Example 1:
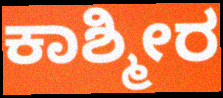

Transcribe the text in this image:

ಕಾಶ್ಮೀರ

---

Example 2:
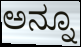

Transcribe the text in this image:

ಅನ್ನೂ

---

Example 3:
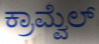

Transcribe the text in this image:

ಕ್ರಾಮ್ವೆಲ್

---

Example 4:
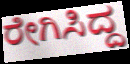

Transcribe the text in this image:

ರೇಗಿಸಿದ್ದ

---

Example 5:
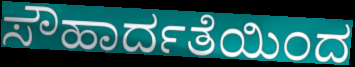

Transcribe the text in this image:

ಸೌಹಾರ್ದತೆಯಿಂದ